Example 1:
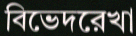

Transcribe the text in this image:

বিভেদরেখা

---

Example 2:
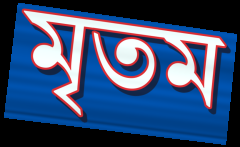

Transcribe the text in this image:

মৃতম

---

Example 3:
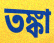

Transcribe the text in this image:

তঙ্কা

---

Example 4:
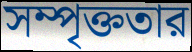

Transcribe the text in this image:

সম্পৃক্ততার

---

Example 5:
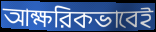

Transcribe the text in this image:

আক্ষরিকভাবেই